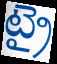
ట్రై